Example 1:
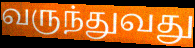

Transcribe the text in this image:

வருந்துவது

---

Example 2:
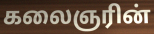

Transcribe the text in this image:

கலைஞரின்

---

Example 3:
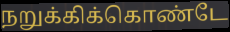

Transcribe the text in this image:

நறுக்கிக்கொண்டே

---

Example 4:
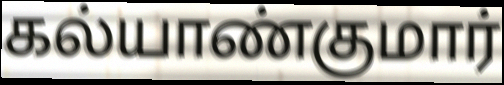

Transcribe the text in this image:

கல்யாண்குமார்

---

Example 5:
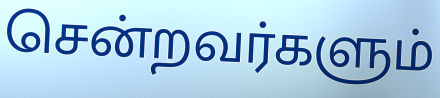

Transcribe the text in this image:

சென்றவர்களும்